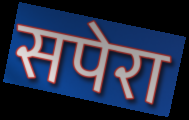
सपेरा